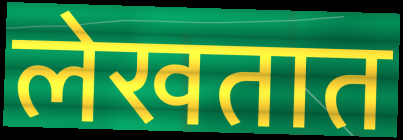
लेखतात